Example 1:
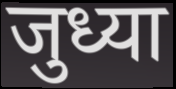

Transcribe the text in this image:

जुध्या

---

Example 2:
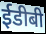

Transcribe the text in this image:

ईडीबी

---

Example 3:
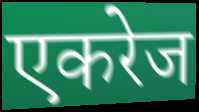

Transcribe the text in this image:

एकरेज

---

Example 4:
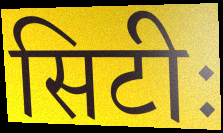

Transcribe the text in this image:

सिटीः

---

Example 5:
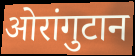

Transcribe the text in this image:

ओरांगुटान